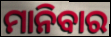
ମାନିବାର